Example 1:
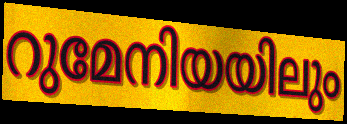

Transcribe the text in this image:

റുമേനിയയിലും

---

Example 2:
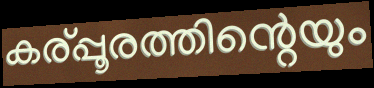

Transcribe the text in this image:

കര്പ്പൂരത്തിന്റെയും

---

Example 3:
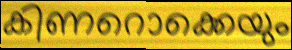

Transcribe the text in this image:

കിണറൊക്കെയും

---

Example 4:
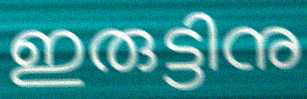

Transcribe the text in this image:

ഇരുട്ടിനു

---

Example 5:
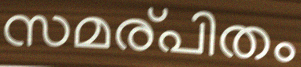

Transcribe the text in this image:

സമര്പിതം